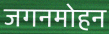
जगनमोहन